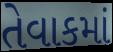
તેવાકમાં